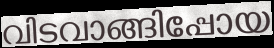
വിടവാങ്ങിപ്പോയ